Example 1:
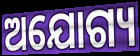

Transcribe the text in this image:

ଅଯୋଗ୍ୟ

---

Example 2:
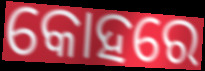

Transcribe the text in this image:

କୋହରେ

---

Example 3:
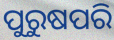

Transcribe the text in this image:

ପୁରୁଷପରି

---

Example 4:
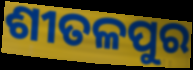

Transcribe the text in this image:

ଶୀତଳପୁର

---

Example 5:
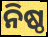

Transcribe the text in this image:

ନିଷ୍ଠ